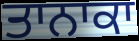
ਤਾਨਾਕਾ